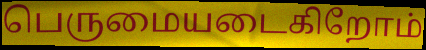
பெருமையடைகிறோம்